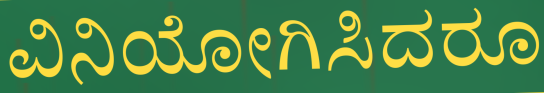
ವಿನಿಯೋಗಿಸಿದರೂ